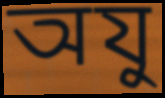
অযু